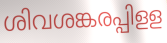
ശിവശങ്കരപ്പിളള